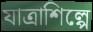
যাত্রাশিল্পে